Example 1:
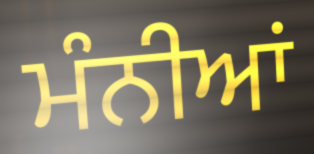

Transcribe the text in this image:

ਮੰਨੀਆਂ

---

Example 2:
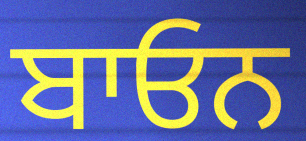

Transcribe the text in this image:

ਬਾਓਨ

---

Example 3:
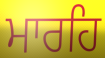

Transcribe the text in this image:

ਮਾਰਹਿ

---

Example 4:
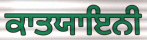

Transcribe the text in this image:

ਕਾਤਯਾਇਨੀ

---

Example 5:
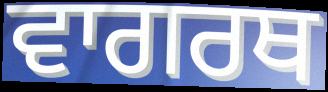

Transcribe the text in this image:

ਵਾਗਰਥ